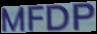
MFDP